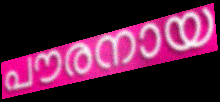
പൗരനായ